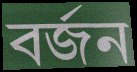
বৰ্জন